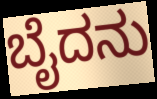
ಬೈದನು